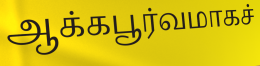
ஆக்கபூர்வமாகச்